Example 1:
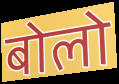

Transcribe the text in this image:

बोलो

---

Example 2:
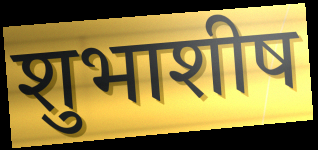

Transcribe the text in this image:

शुभाशीष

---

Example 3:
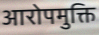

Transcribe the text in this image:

आरोपमुक्ति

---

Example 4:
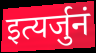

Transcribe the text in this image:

इत्यर्जुनं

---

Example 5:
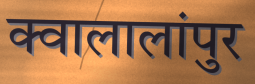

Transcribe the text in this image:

क्वालालांपुर